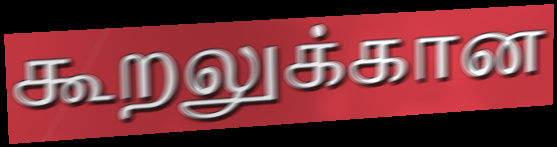
கூறலுக்கான